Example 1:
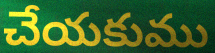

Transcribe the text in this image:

చేయకుము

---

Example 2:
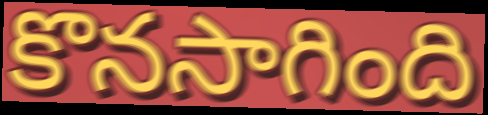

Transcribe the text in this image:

కొనసాగింది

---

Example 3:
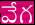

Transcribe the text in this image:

వేగ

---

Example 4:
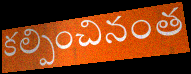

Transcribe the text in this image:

కల్పించినంత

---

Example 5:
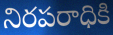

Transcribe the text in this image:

నిరపరాధికి